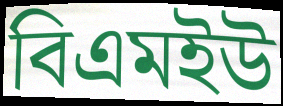
বিএমইউ